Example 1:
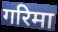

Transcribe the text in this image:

गरिमा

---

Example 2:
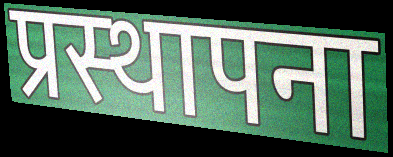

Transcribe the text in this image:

प्रस्थापना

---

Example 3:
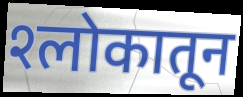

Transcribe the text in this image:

श्लोकातून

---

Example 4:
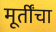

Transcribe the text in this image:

मूर्तींचा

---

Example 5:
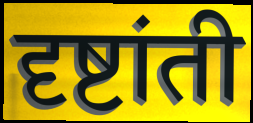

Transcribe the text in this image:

दृष्टांती